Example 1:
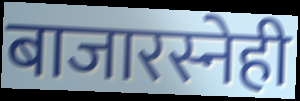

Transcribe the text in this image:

बाजारस्नेही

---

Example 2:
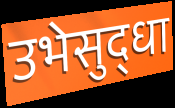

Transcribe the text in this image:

उभेसुद्धा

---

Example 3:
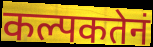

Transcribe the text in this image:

कल्पकतेनं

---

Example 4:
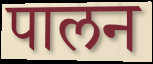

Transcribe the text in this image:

पालन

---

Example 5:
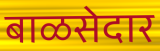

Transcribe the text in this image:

बाळसेदार